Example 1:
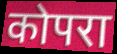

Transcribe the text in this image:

कोपरा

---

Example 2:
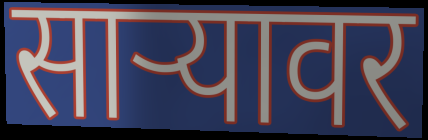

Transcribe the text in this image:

साऱ्यावर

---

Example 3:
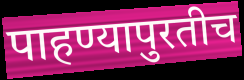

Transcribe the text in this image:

पाहण्यापुरतीच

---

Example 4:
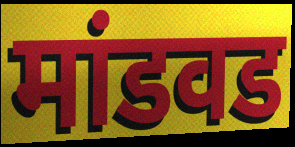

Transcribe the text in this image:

मांडवड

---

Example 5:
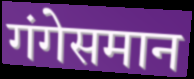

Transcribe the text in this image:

गंगेसमान